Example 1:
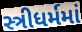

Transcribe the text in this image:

સ્ત્રીધર્મમાં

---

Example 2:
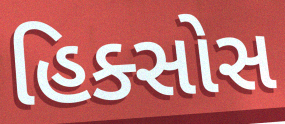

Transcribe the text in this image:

હિક્સોસ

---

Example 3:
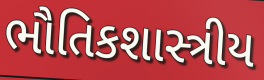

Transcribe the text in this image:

ભૌતિકશાસ્ત્રીય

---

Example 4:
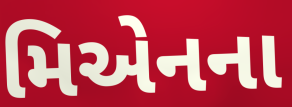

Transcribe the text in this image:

મિએનના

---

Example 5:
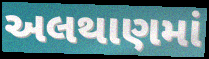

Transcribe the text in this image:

અલથાણમાં